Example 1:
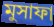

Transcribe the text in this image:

মুসাফা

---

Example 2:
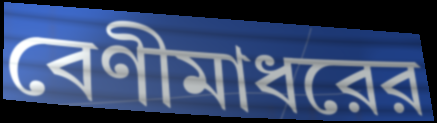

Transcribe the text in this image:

বেণীমাধরের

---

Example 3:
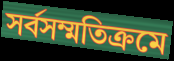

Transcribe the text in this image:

সর্বসম্মতিক্রমে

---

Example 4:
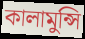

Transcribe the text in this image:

কালামুন্সি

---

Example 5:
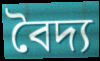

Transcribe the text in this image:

বৈদ্য